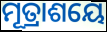
ମୂତ୍ରାଶୟେ